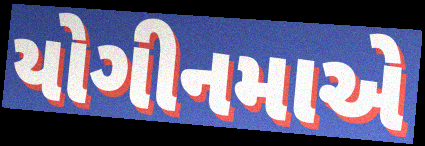
યોગીનમાએ